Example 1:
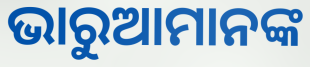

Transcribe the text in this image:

ଭାରୁଆମାନଙ୍କ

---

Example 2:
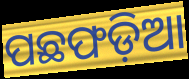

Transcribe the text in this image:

ପଛଫଡ଼ିଆ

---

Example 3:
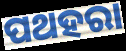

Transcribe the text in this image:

ପଥହରା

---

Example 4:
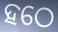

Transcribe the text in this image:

ହଠେ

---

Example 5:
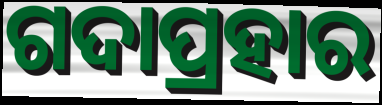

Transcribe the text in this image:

ଗଦାପ୍ରହାର